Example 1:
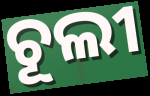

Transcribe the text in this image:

ଚୂଲୀ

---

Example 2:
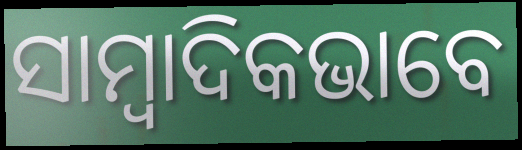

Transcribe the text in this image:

ସାମ୍ୱାଦିକଭାବେ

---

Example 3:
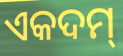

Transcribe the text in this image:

ଏକଦମ୍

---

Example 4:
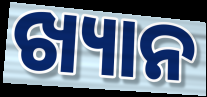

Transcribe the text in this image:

ଖ୍ୟାନ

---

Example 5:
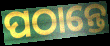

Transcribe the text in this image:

ପଠାନ୍ତେ